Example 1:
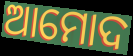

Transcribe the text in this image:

ଆମୋଦ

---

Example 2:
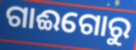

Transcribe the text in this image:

ଗାଈଗୋରୁ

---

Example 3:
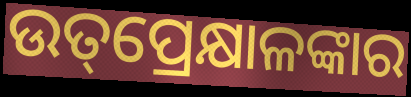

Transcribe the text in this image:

ଉତ୍‌ପ୍ରେକ୍ଷାଳଙ୍କାର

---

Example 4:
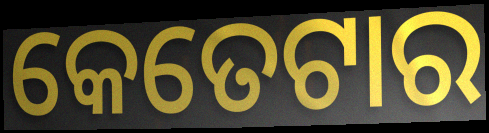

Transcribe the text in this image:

କେତେଟାର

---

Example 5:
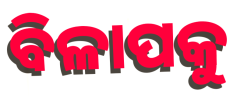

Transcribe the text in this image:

ବିଳାପକୁ